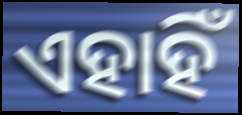
ଏହାହିଁ